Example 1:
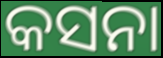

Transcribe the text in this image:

କସନା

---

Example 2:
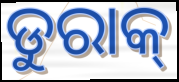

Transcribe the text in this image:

ଡୁରାକ୍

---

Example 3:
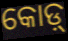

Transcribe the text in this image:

କୋଡ଼୍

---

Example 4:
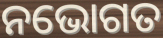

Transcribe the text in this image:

ନଭୋଗତ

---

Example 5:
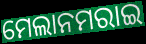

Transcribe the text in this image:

ମେଲାନମରାଇ